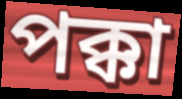
পক্কা